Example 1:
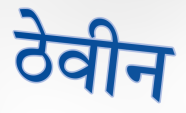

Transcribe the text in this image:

ठेवीन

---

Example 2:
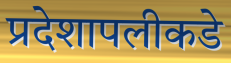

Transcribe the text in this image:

प्रदेशापलीकडे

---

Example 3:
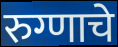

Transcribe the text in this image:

रुग्‍णाचे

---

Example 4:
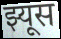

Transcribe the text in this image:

झ्यूस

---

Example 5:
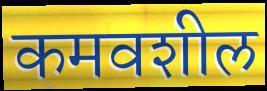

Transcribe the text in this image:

कमवशील